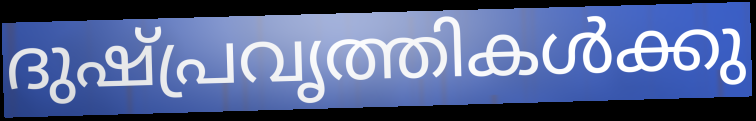
ദുഷ്പ്രവൃത്തികൾക്കു